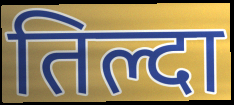
तिल्दा